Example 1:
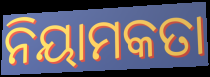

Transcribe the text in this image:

ନିୟାମକତା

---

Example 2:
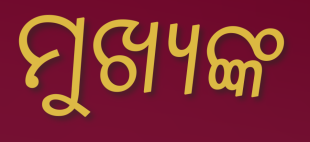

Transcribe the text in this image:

ମୁଖ୍ୟଙ୍କ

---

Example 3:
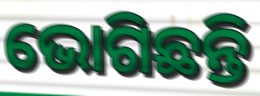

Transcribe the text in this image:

ଭୋଗିଛନ୍ତି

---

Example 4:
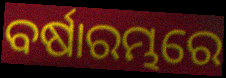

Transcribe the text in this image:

ବର୍ଷାରମ୍ଭରେ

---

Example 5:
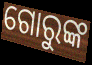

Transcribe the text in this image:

ଗୋରୁଙ୍କ